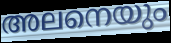
അലനെയും